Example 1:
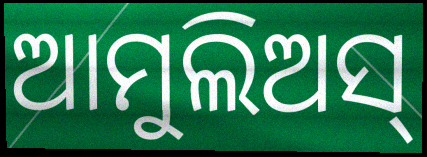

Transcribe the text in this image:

ଆମୁଲିଅସ୍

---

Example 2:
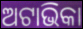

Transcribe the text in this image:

ଅଟାଭିକା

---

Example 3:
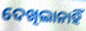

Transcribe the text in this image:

ଦେଖିଲାନାହିଁ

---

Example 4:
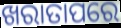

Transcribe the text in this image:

ଖରାତାପରେ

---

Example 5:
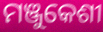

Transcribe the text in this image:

ମଞ୍ଜୁକେଶୀ